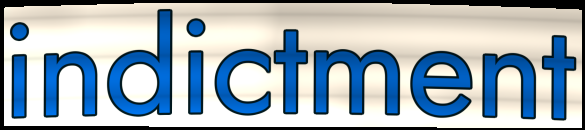
indictment